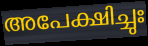
അപേക്ഷിച്ചുഃ